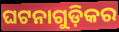
ଘଟନାଗୁଡ଼ିକର